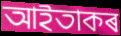
আইতাকৰ